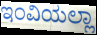
ಇಂವಿಯಲ್ಲಾ